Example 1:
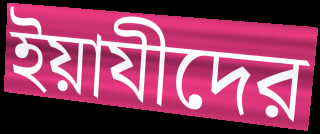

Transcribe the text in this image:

ইয়াযীদের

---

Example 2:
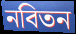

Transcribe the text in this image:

নবিতন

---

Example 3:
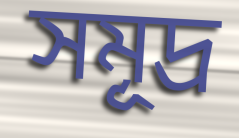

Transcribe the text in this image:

সমূদ্র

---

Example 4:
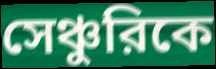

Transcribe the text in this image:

সেঞ্চুরিকে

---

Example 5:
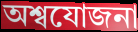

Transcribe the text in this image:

অশ্বযোজনা